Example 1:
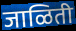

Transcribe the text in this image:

जाळिती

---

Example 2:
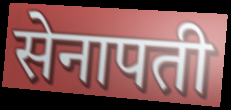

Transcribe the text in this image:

सेनापती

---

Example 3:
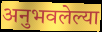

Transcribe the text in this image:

अनुभवलेल्या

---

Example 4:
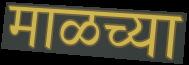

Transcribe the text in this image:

माळच्या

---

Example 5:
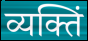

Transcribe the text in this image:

व्यक्तिं